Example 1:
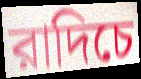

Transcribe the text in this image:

রাদিচে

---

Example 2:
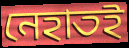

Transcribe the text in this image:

নেহাতই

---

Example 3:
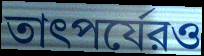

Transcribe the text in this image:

তাৎপর্যেরও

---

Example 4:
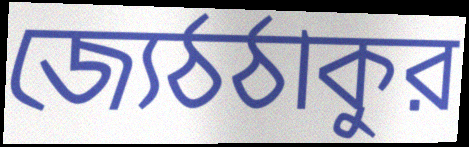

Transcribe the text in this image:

জ্যেঠঠাকুর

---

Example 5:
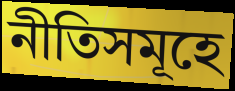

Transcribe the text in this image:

নীতিসমূহে